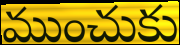
ముంచుకు